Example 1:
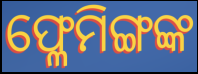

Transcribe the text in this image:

ଫ୍ଳେମିଙ୍ଗଙ୍କ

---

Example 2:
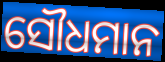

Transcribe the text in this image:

ସୌଧମାନ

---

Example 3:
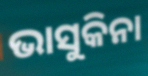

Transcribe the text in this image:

ଭାସୁକିନା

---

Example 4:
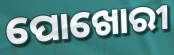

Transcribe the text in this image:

ପୋଖୋରୀ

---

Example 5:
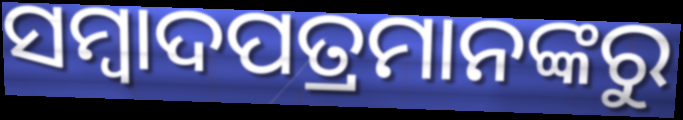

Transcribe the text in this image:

ସମ୍ୱାଦପତ୍ରମାନଙ୍କରୁ